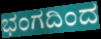
ಭಂಗದಿಂದ